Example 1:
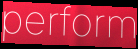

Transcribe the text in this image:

perform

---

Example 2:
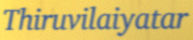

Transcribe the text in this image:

Thiruvilaiyatar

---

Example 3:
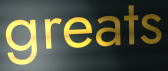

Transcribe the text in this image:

greats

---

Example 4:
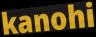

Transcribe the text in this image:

kanohi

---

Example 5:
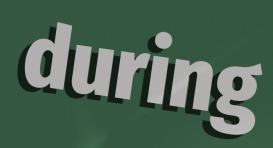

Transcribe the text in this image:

during